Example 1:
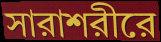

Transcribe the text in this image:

সারাশরীরে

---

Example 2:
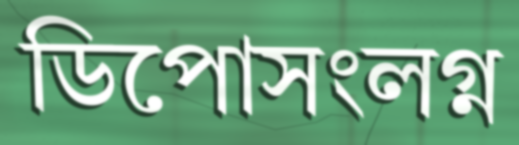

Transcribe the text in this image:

ডিপোসংলগ্ন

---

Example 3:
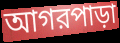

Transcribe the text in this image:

আগরপাড়া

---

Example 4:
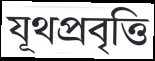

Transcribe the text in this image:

যূথপ্রবৃত্তি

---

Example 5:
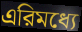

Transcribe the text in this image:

এরিমধ্যে